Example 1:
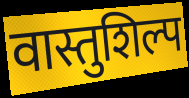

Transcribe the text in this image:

वास्तुशिल्प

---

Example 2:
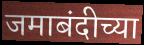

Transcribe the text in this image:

जमाबंदीच्या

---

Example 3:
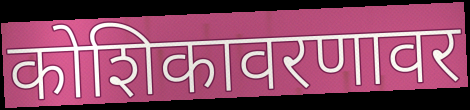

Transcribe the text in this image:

कोशिकावरणावर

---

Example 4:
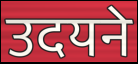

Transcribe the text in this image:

उदयने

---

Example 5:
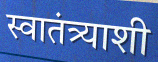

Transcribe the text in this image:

स्वातंत्र्याशी